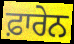
ਫ਼ਾਰੇਨ